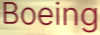
Boeing